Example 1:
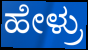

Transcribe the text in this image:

ಹೇಳ್ರು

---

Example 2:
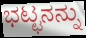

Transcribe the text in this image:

ಭಟ್ಟನನ್ನು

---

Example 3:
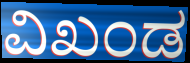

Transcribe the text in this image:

ವಿಖಂಡ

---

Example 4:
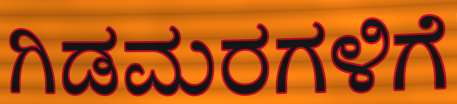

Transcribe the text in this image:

ಗಿಡಮರಗಳಿಗೆ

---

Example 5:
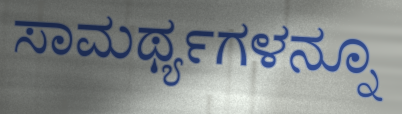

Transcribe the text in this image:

ಸಾಮರ್ಥ್ಯಗಳನ್ನೂ